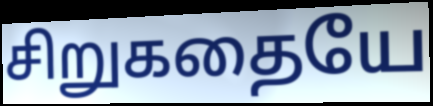
சிறுகதையே